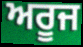
ਅਰੂਜ